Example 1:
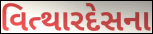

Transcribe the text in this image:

વિત્થારદેસના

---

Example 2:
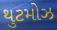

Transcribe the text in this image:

થુટમોઝ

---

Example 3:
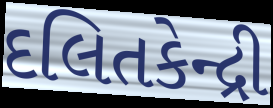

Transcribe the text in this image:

દલિતકેન્દ્રી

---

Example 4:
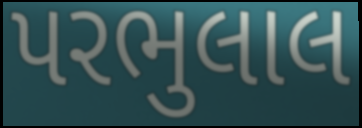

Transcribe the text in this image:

પરભુલાલ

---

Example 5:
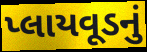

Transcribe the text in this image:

પ્લાયવૂડનું